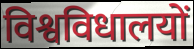
विश्वविधालयों